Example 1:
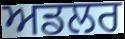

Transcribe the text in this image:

ਅਡਲਰ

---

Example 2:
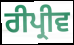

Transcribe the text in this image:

ਰੀਪ੍ਰੀਵ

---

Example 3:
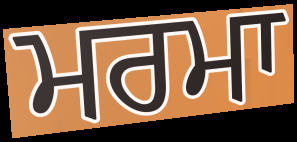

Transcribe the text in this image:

ਮਰਮਾ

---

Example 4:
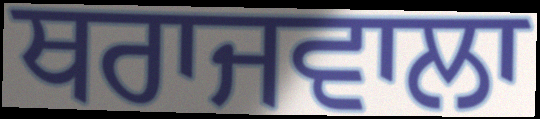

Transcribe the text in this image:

ਥਰਾਜਵਾਲਾ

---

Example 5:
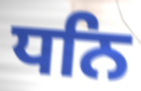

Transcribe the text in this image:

ਧਨਿ